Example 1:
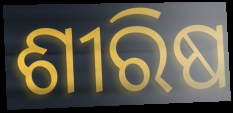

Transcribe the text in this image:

ଶୀରିଷ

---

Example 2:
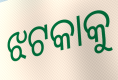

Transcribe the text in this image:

ଝଟକାକୁ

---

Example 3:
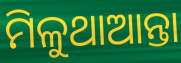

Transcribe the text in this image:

ମିଳୁଥାଆନ୍ତା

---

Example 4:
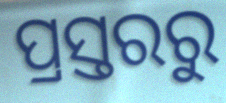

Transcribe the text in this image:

ପ୍ରସ୍ତରରୁ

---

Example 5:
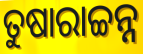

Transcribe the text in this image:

ତୁଷାରାଚ୍ଚନ୍ନ